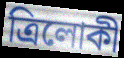
ত্রিলোকী